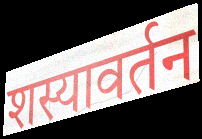
शस्यावर्तन